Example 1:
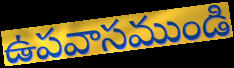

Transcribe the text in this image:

ఉపవాసముండి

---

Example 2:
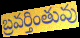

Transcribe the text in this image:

బ్రవర్తింతువు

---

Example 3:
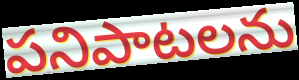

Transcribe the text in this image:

పనిపాటలను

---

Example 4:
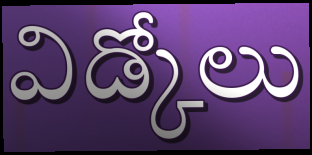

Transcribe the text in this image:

విడ్కోలు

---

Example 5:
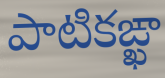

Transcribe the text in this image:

పాటికఙ్ఖా